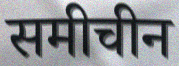
समीचीन